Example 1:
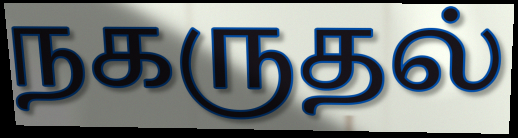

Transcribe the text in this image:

நகருதல்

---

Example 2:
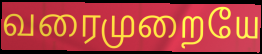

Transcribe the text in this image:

வரைமுறையே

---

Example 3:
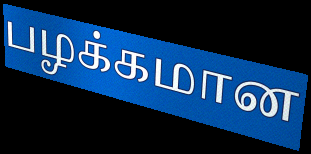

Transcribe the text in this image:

பழக்கமான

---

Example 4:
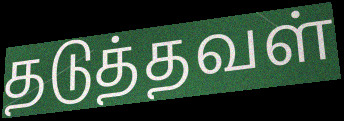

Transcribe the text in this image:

தடுத்தவள்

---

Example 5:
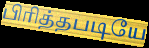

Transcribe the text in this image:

பிரித்தபடியே